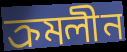
ক্রমলীন